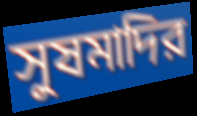
সুষমাদির